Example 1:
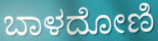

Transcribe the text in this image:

ಬಾಳದೋಣಿ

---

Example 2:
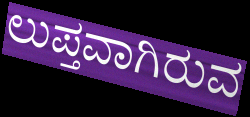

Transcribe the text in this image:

ಲುಪ್ತವಾಗಿರುವ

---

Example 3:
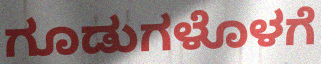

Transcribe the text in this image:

ಗೂಡುಗಳೊಳಗೆ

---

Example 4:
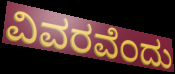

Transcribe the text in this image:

ವಿವರವೆಂದು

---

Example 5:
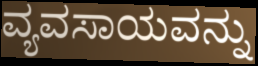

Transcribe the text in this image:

ವ್ಯವಸಾಯವನ್ನು